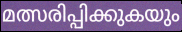
മത്സരിപ്പിക്കുകയും